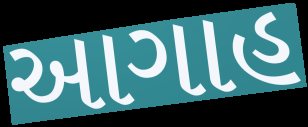
આગાહ